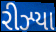
રીઝ્યા